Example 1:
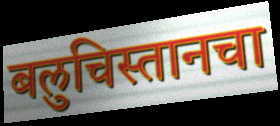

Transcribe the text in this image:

बलुचिस्तानचा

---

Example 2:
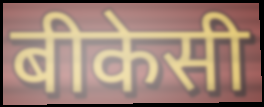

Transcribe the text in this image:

बीकेसी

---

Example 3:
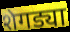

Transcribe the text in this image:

शेगड्या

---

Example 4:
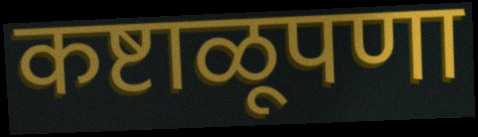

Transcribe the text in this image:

कष्टाळूपणा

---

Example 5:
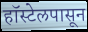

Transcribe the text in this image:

हॉस्टेलपासून